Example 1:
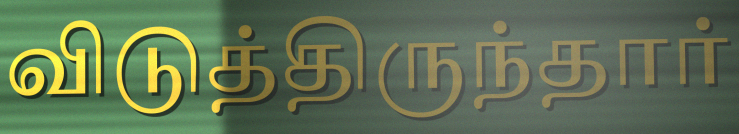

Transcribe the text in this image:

விடுத்திருந்தார்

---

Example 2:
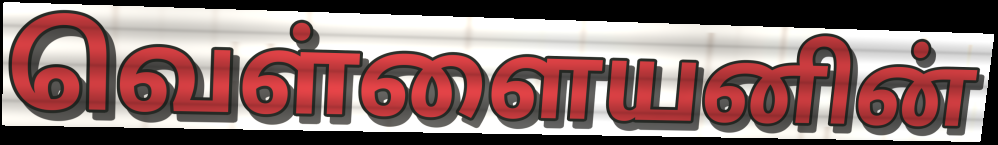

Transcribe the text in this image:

வெள்ளையனின்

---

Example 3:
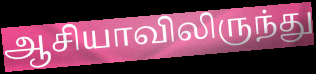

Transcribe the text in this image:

ஆசியாவிலிருந்து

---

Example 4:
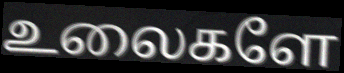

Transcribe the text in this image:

உலைகளே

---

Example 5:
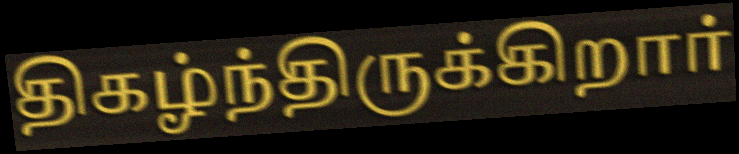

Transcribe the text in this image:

திகழ்ந்திருக்கிறார்